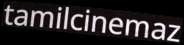
tamilcinemaz